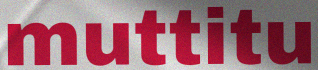
muttitu